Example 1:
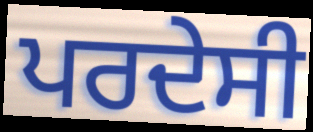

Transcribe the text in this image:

ਪਰਦੇਸੀ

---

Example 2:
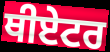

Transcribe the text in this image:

ਥੀਏਟਰ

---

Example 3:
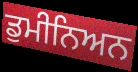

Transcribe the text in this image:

ਡੁਮੀਨਿਅਨ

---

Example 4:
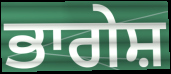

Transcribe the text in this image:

ਭਾਗੇਸ਼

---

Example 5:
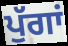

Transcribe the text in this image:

ਪੁੱਗਾਂ